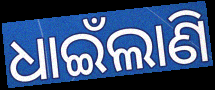
ଧାଇଁଲାଣି